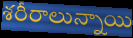
శరీరాలున్నాయి